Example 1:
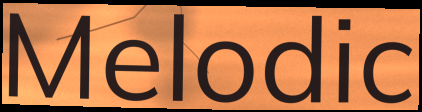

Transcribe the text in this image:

Melodic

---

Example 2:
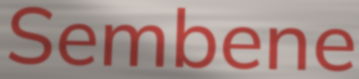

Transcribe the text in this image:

Sembene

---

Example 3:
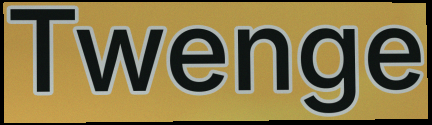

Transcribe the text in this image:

Twenge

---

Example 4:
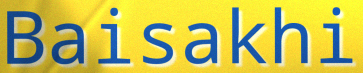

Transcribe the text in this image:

Baisakhi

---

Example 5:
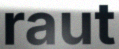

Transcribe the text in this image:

raut